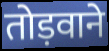
तोड़वाने